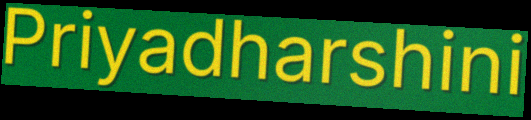
Priyadharshini